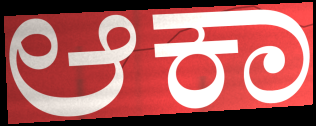
ಆಕಾ